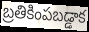
బ్రతికింపబడ్డాక